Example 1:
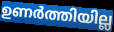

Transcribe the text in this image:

ഉണർത്തിയില്ല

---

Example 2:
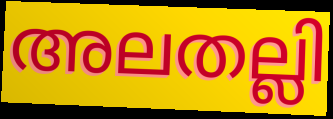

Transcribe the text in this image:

അലതല്ലി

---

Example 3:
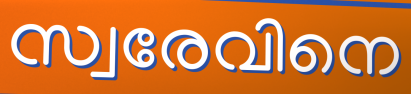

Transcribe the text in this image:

സ്വരേവിനെ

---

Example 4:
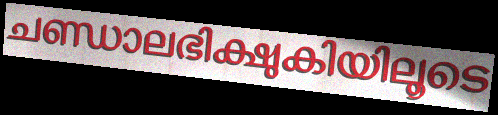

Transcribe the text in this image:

ചണ്ഡാലഭിക്ഷുകിയിലൂടെ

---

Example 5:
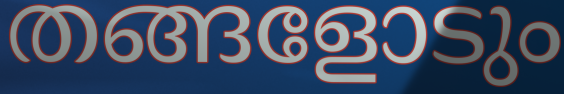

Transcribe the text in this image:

തങ്ങളോടും